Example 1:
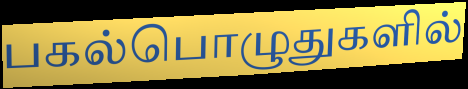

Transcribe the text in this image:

பகல்பொழுதுகளில்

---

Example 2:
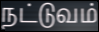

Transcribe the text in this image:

நட்டுவம்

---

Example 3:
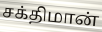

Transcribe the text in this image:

சக்திமான்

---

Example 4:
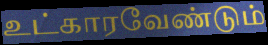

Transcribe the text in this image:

உட்காரவேண்டும்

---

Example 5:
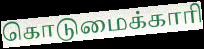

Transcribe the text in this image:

கொடுமைக்காரி